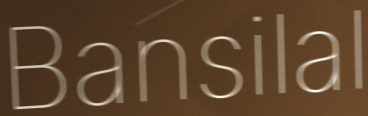
Bansilal